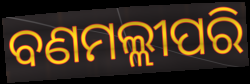
ବଣମଲ୍ଲୀପରି